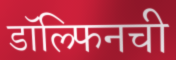
डॉल्फिनची